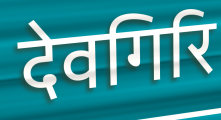
देवगिरि